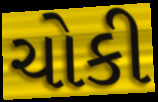
ચોકી